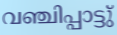
വഞ്ചിപ്പാട്ടു്